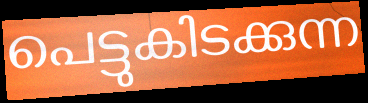
പെട്ടുകിടക്കുന്ന